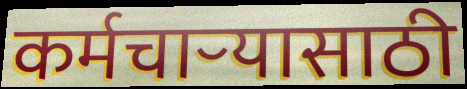
कर्मचाऱ्यासाठी